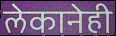
लेकानेही